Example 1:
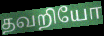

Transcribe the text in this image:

தவறியோ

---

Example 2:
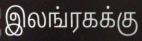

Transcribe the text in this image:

இலங்ரகக்கு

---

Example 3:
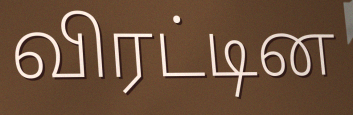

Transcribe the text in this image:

விரட்டின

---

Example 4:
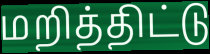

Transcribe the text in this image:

மறித்திட்டு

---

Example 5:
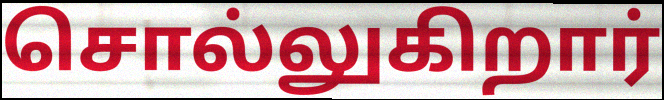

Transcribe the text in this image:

சொல்லுகிறார்